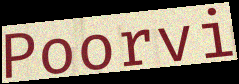
Poorvi